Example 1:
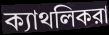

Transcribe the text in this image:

ক্যাথলিকরা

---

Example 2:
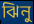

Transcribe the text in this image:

ঝিনু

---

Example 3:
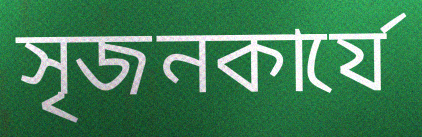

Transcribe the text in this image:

সৃজনকার্যে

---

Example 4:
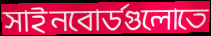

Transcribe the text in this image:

সাইনবোর্ডগুলোতে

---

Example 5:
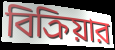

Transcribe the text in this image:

বিক্রিয়ার